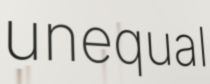
unequal